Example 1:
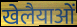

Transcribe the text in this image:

खेलैयाओं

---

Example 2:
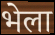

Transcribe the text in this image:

भेला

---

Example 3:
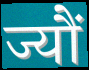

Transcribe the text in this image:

ज्यौं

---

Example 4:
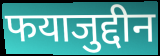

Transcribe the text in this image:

फयाजुद्दीन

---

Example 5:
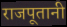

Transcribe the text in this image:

राजपूतानी